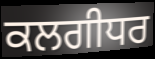
ਕਲਗੀਧਰ